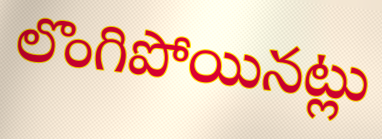
లొంగిపోయినట్లు